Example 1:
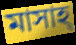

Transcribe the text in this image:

মাসাহ্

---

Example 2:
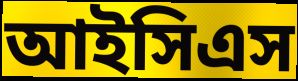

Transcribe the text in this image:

আইসিএস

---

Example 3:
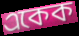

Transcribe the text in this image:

একেক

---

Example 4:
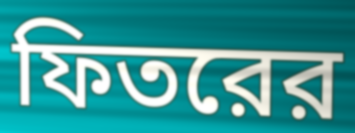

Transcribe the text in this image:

ফিতরের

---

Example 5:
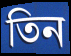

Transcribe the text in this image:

তিন